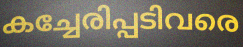
കച്ചേരിപ്പടിവരെ